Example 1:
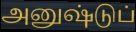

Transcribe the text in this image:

அனுஷ்டுப்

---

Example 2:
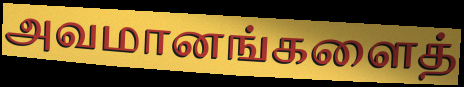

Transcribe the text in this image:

அவமானங்களைத்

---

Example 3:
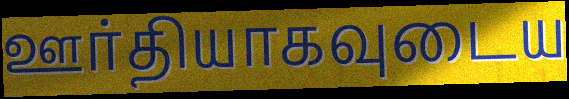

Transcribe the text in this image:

ஊர்தியாகவுடைய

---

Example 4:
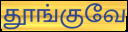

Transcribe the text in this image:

தூங்குவே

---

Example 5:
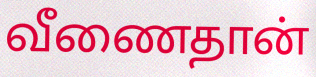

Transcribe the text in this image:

வீணைதான்